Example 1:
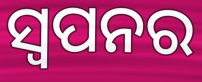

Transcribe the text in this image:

ସ୍ୱପନର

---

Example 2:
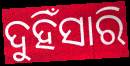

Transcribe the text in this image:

ଦୁହିଁସାରି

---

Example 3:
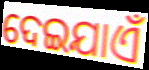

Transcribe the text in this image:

ଦେଇଯାଏଁ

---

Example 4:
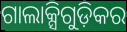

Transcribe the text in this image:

ଗାଲାକ୍ସିଗୁଡ଼ିକର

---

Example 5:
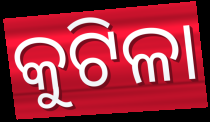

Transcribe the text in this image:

କୁଟିଳା